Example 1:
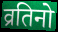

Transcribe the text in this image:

व्रतिनो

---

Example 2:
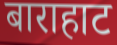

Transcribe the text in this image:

बाराहाट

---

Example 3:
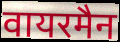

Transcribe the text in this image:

वायरमैन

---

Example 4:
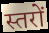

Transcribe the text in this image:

स्तरों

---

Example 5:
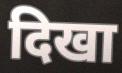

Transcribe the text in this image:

दिखा